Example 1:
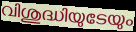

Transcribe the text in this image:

വിശുദ്ധിയുടേയും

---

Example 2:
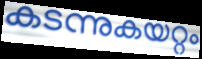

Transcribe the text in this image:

കടന്നുകയറ്റം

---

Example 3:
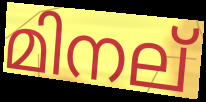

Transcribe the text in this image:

മിനല്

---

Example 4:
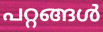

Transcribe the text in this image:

പറ്റങ്ങൾ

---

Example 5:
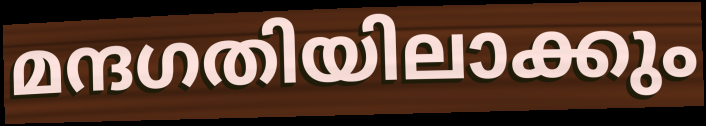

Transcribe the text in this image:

മന്ദഗതിയിലാക്കും